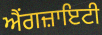
ਐਂਗਜ਼ਾਇਟੀ